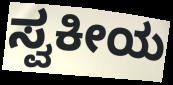
ಸ್ವಕೀಯ